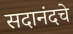
सदानंदचे